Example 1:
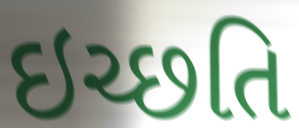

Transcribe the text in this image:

ઇચ્છતિ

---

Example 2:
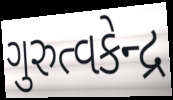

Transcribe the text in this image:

ગુરુત્વકેન્દ્ર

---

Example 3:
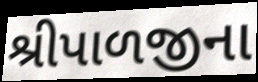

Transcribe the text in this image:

શ્રીપાળજીના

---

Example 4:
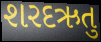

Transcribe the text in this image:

શરદઋતુ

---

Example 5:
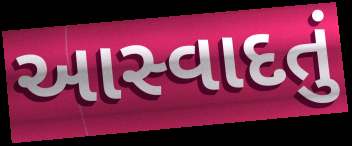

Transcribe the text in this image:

આસ્વાદતું